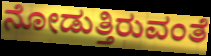
ನೋಡುತ್ತಿರುವಂತೆ